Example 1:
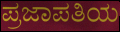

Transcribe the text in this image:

ಪ್ರಜಾಪತಿಯ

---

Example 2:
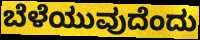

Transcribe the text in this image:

ಬೆಳೆಯುವುದೆಂದು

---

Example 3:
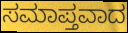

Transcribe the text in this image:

ಸಮಾಪ್ತವಾದ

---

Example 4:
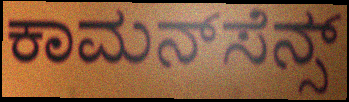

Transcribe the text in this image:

ಕಾಮನ್‌ಸೆನ್ಸ್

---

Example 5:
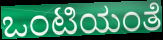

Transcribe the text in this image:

ಒಂಟಿಯಂತೆ